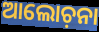
ଆଲୋଚ଼ନା